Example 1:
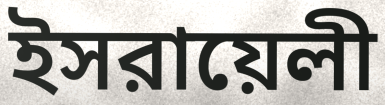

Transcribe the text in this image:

ইসরায়েলী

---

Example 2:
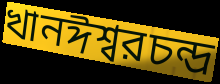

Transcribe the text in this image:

খানঈশ্বরচন্দ্র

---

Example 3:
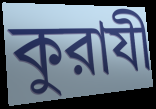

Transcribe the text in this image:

কুরাযী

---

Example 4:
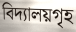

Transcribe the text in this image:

বিদ্যালয়গৃহ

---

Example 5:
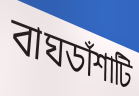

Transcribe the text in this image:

বাঘডাঁশাটি